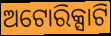
ଅଟୋରିକ୍ସାଟି